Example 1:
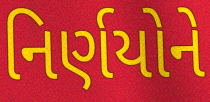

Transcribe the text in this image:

નિર્ણયોને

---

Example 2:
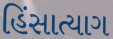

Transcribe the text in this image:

હિંસાત્યાગ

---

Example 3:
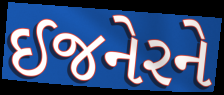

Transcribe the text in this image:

ઈજનેરને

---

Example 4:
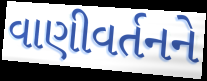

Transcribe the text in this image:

વાણીવર્તનને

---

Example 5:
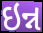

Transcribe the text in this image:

ઇન્ન